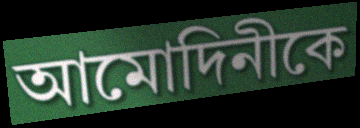
আমোদিনীকে